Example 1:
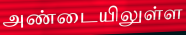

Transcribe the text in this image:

அண்டையிலுள்ள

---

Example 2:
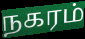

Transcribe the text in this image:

நகரம்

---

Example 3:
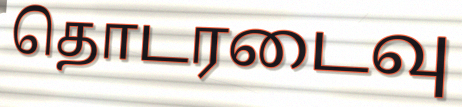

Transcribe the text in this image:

தொடரடைவு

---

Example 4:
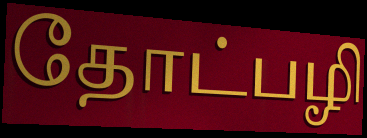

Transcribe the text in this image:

தோட்பழி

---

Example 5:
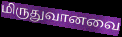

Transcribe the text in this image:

மிருதுவானவை